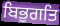
ਬਿਭੁਗਤਿ